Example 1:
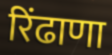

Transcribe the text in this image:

रिंढाणा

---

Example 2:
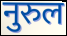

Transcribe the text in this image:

नुरुल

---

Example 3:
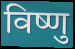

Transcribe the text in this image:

विष्‍णु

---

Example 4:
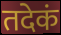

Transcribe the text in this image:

तदेकं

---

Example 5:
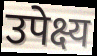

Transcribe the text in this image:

उपेक्ष्य